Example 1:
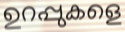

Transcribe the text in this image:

ഉറപ്പുകളെ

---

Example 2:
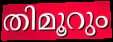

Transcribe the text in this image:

തിമൂറും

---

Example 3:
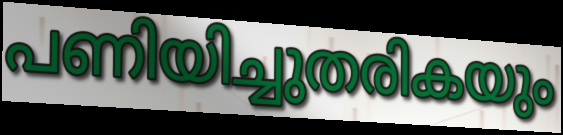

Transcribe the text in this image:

പണിയിച്ചുതരികയും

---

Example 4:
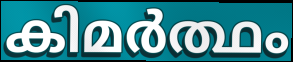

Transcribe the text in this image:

കിമർത്ഥം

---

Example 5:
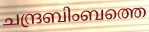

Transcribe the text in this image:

ചന്ദ്രബിംബത്തെ